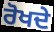
ਰੋਖਦੇ